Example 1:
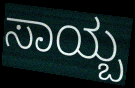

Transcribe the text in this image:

ಸಾಯ್ಬ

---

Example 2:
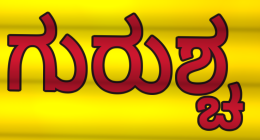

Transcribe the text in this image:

ಗುರುಶ್ಚ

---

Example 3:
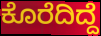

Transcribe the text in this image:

ಕೊರೆದಿದ್ದೆ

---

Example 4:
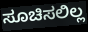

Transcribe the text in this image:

ಸೂಚಿಸಲಿಲ್ಲ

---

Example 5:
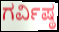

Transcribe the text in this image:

ಗರ್ವಿಷ್ಠ